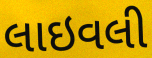
લાઇવલી